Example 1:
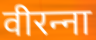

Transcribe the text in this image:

वीरन्ना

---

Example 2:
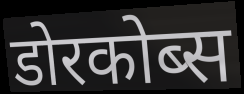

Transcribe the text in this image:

डोरकोब्स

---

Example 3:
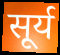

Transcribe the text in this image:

सूर्य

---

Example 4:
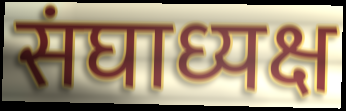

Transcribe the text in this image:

संघाध्यक्ष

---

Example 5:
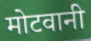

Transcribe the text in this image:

मोटवानी